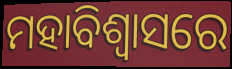
ମହାବିଶ୍ୱାସରେ